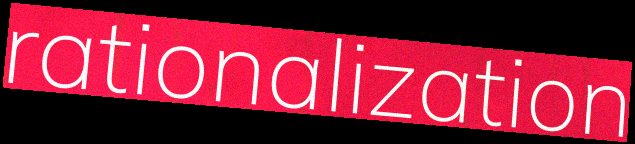
rationalization